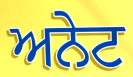
ਅਨੇਟ